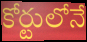
కోర్టులోనే